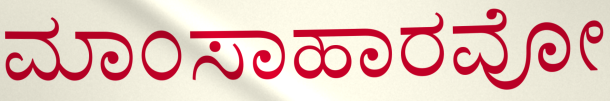
ಮಾಂಸಾಹಾರವೋ